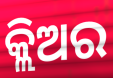
କ୍ଲିଅର